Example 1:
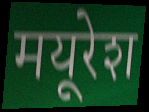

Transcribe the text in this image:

मयूरेश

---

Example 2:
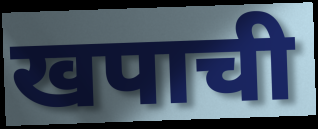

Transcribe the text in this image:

खपाची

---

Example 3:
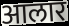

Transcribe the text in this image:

आलार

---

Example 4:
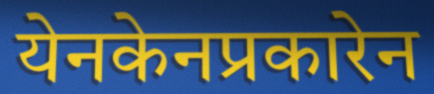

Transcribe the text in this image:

येनकेनप्रकारेन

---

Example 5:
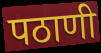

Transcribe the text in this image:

पठाणी